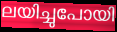
ലയിച്ചുപോയി